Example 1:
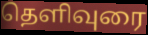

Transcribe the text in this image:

தெளிவுரை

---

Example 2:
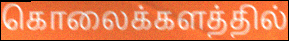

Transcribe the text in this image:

கொலைக்களத்தில்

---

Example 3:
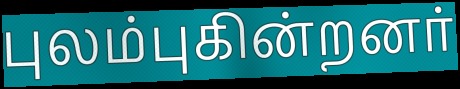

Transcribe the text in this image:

புலம்புகின்றனர்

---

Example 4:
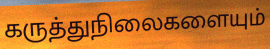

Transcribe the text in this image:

கருத்துநிலைகளையும்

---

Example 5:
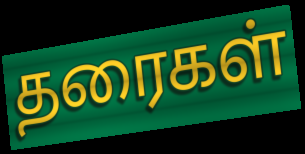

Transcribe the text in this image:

தரைகள்